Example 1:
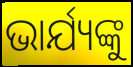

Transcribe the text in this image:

ଭାର୍ଯ୍ୟଙ୍କୁ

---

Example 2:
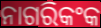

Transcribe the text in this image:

ନାଗରିକଂକ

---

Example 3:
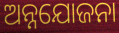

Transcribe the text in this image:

ଅନ୍ନଯୋଜନା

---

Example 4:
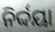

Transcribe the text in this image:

ନିର୍ଦ୍ଦୟା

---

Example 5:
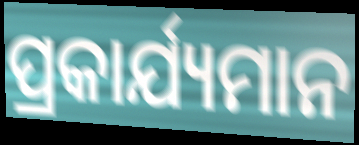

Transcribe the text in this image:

ପ୍ରକାର୍ଯ୍ୟମାନ